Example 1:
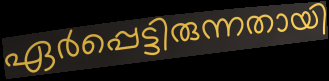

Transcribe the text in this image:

ഏർപ്പെട്ടിരുന്നതായി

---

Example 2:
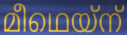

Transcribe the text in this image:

മീഥെയ്ന്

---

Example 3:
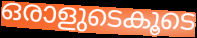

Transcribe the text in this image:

ഒരാളുടെകൂടെ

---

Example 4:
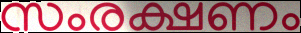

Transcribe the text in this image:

സംരക്ഷണം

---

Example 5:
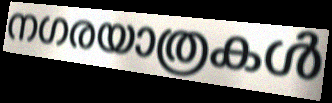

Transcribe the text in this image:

നഗരയാത്രകൾ